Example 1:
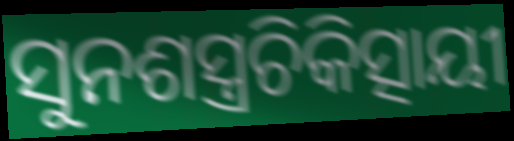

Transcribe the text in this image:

ସୁନଶସ୍ତ୍ରଚିକିତ୍ସାୟୀ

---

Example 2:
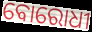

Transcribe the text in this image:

ବୋରୋଧୀ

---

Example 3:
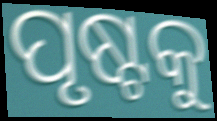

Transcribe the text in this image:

ପୃଷ୍ଟକୁ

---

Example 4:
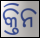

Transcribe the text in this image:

କ୍ତିନ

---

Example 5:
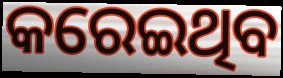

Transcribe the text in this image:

କରେଇଥିବ